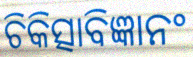
ଚିକିତ୍ସାବିଜ୍ଞାନଂ